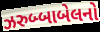
ઝરુબ્બાબેલનો